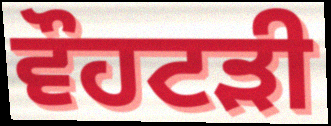
ਵੌਹਟੜੀ